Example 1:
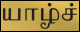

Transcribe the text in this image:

யாழ்ச்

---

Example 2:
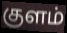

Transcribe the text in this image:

குளம்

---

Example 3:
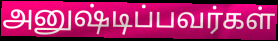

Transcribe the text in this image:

அனுஷ்டிப்பவர்கள்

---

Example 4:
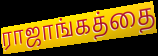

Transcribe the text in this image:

ராஜாங்கத்தை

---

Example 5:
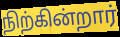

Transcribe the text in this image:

நிற்கின்றார்